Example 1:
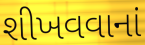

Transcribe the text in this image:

શીખવવાનાં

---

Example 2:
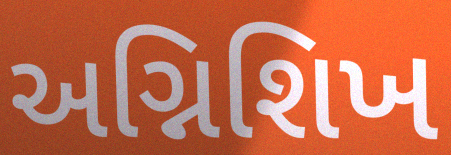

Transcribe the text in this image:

અગ્નિશિખ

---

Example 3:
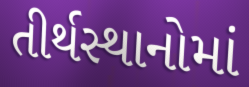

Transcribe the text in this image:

તીર્થસ્થાનોમાં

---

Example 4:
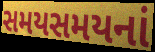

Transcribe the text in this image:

સમયસમયનાં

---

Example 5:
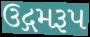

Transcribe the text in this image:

ઉદ્ગમરૂપ